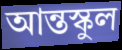
আন্তস্কুল